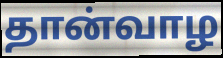
தான்வாழ